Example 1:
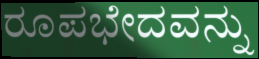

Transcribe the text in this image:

ರೂಪಭೇದವನ್ನು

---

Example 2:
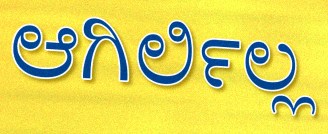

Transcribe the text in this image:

ಆಗಿರ್ಲಿಲ್ಲ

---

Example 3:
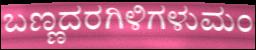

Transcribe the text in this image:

ಬಣ್ಣದರಗಿಳಿಗಳುಮಂ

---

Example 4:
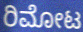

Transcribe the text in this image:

ರಿಮೋಟ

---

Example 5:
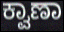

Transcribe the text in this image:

ಕ್ವಾಣಾ